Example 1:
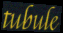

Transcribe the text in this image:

tubule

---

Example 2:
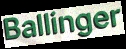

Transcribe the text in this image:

Ballinger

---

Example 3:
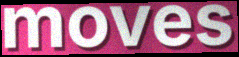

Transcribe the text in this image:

moves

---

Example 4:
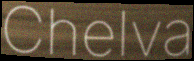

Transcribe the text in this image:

Chelva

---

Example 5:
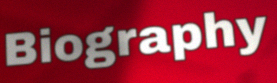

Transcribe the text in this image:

Biography